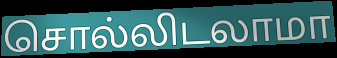
சொல்லிடலாமா